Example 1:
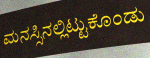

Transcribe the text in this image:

ಮನಸ್ಸಿನಲ್ಲಿಟ್ಟುಕೊಂಡು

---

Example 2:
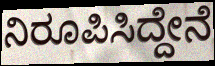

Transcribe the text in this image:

ನಿರೂಪಿಸಿದ್ದೇನೆ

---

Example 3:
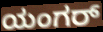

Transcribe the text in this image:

ಯಂಗರ್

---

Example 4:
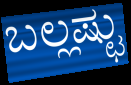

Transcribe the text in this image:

ಬಲ್ಲಷ್ಟು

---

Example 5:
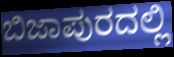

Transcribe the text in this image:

ಬಿಜಾಪುರದಲ್ಲಿ